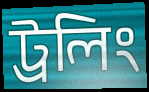
ট্রলিং